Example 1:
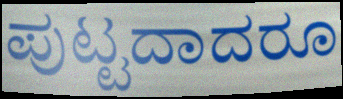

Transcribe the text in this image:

ಪುಟ್ಟದಾದರೂ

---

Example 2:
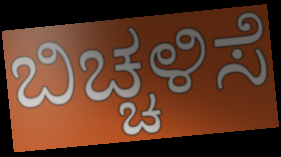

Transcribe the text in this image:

ಬಿಚ್ಚಳಿಸೆ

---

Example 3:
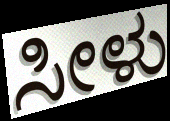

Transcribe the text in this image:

ಸೀಳು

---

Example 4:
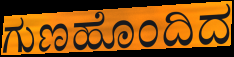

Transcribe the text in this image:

ಗುಣಹೊಂದಿದ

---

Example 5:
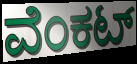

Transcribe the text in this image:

ವೆಂಕಟ್